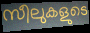
സീലുകളുടെ